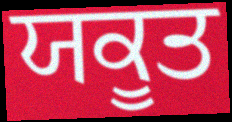
ਯਕੂਤ